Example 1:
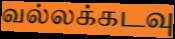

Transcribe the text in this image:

வல்லக்கடவு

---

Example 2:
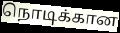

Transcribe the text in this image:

நொடிக்கான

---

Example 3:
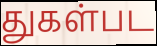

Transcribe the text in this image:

துகள்பட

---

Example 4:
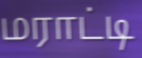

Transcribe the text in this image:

மராட்டி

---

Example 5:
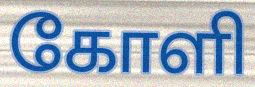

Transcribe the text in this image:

கோளி